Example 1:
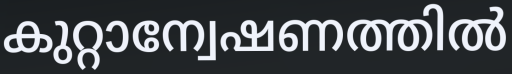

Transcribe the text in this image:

കുറ്റാന്വേഷണത്തിൽ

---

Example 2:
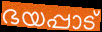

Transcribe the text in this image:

ഭയപ്പാട്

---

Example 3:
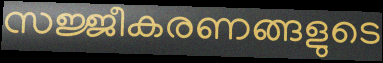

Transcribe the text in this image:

സജ്ജീകരണങ്ങളുടെ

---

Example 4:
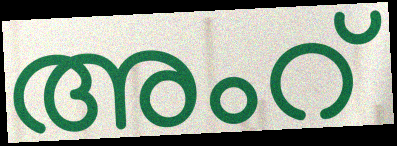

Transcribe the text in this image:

അംറ്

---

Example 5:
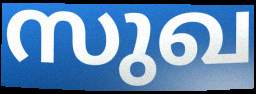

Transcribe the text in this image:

സുഖ